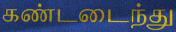
கண்டடைந்து